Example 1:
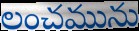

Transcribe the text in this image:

లంచమును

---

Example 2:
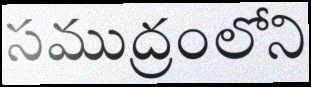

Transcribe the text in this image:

సముద్రంలోని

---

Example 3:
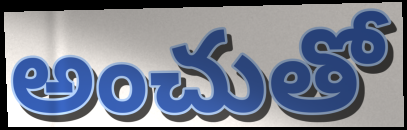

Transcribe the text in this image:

అంచుతో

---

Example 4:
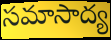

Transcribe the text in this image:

సమాసాద్య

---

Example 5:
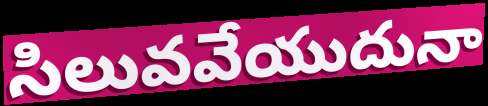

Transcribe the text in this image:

సిలువవేయుదునా